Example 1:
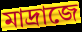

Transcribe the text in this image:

মাদ্রাজে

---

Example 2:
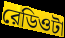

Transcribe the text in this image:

রেডিওটা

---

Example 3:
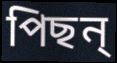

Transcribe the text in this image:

পিছন্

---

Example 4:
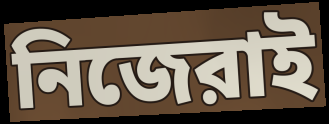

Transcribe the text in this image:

নিজেরাই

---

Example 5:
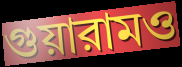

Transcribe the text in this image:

গুয়ারামও